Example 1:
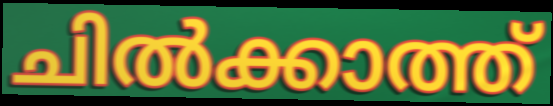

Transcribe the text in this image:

ചിൽക്കാത്ത്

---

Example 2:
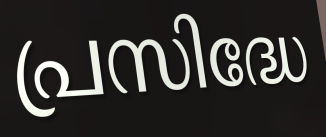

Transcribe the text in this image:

പ്രസിദ്ധേ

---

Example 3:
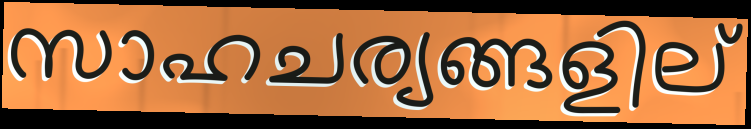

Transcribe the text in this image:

സാഹചര്യങ്ങളില്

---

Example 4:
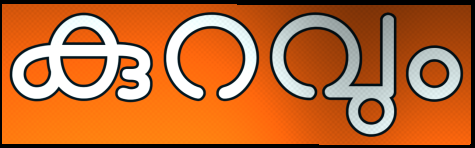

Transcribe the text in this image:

കുറവും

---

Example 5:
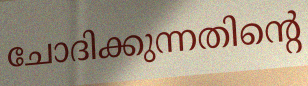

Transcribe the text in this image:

ചോദിക്കുന്നതിന്റെ